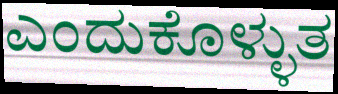
ಎಂದುಕೊಳ್ಳುತ